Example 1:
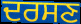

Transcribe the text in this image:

ਦਰਸਣ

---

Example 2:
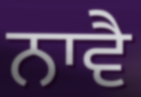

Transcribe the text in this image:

ਨਾਵੈ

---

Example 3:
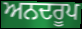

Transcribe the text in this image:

ਅਨਦਰੂਪ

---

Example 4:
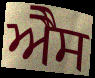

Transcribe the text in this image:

ਐੈਸ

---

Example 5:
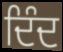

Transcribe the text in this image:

ਦਿੰਦ